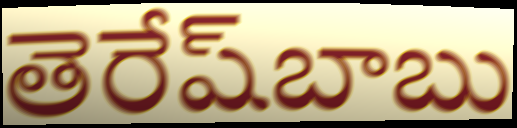
తెరేష్‌బాబు